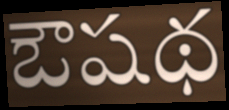
ఔషథ